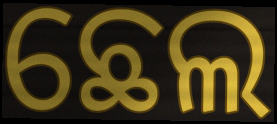
ଛେଲ